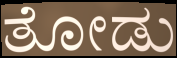
ತೋಡು